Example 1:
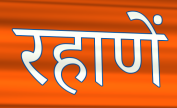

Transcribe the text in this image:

रहाणें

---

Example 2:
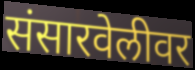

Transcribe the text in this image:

संसारवेलीवर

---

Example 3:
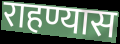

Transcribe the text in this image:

राहण्यास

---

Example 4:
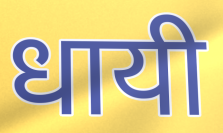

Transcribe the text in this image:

धायी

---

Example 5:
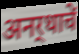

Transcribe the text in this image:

अनर्थाचें